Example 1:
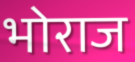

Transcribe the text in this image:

भोराज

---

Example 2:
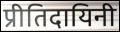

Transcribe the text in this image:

प्रीतिदायिनी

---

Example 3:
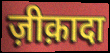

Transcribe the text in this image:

ज़ीक़ादा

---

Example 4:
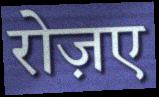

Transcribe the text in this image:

रोज़ए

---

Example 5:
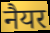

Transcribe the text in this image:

नैयर